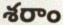
శరాం